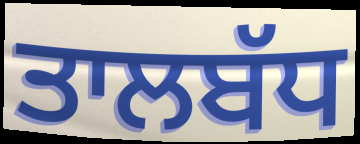
ਤਾਲਬੱਧ